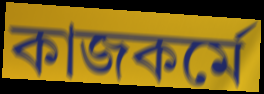
কাজকর্মে